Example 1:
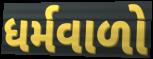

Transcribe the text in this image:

ધર્મવાળો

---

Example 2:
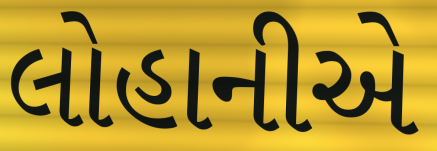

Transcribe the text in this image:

લોહાનીએ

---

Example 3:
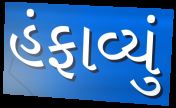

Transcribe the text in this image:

હંફાવ્યું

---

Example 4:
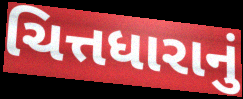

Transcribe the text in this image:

ચિત્તધારાનું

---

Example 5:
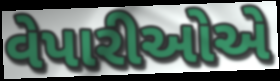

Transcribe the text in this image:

વેપારીઓએ